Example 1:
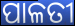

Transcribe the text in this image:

ପାଳତୀ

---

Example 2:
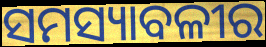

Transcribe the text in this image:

ସମସ୍ୟାବଳୀର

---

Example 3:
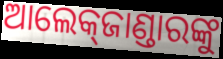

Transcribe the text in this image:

ଆଲେକ୍‌ଜାଣ୍ଡାରଙ୍କୁ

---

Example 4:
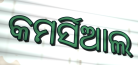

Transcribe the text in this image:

କମର୍ସିଆଲ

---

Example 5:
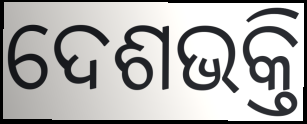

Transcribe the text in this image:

ଦେଶଭକ୍ତି